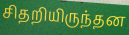
சிதறியிருந்தன